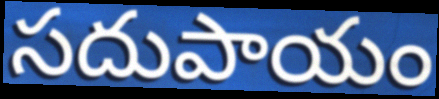
సదుపాయం